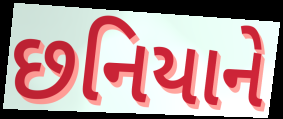
છનિયાને